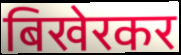
बिखेरकर